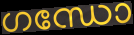
ഗന്ധോ